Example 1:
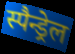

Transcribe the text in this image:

स्पैन्ड्रेल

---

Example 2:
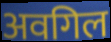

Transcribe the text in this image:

अवगिल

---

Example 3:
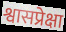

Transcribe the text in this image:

श्वासप्रेक्षा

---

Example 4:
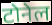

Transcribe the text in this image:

टोनेल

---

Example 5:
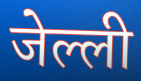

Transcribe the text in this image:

जेल्ली